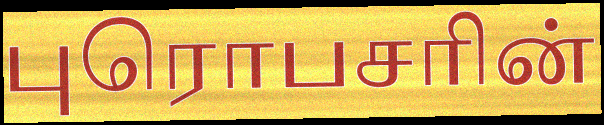
புரொபசரின்